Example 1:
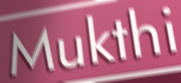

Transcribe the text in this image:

Mukthi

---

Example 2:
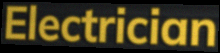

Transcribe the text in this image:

Electrician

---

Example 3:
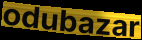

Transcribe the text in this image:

odubazar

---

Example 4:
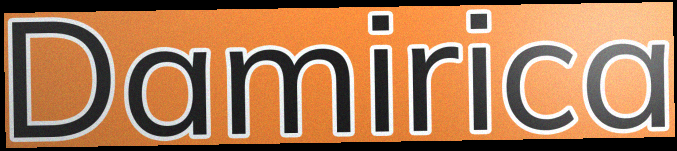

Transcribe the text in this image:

Damirica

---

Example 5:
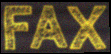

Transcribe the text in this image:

FAX